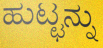
ಹುಟ್ಟನ್ನು